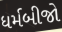
ધર્મબીજો